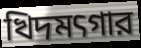
খিদমৎগার